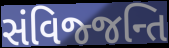
સંવિજ્જન્તિ